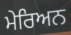
ਮੇਰਿਅਨ